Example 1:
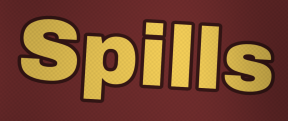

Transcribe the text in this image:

Spills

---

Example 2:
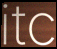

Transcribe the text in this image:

itc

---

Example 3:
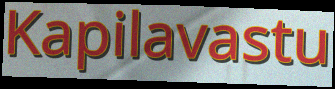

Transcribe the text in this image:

Kapilavastu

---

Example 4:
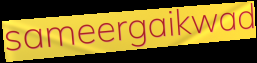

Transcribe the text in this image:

sameergaikwad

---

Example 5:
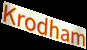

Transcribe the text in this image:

Krodham